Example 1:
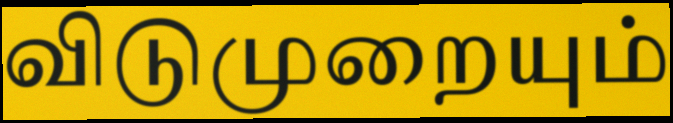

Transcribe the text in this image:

விடுமுறையும்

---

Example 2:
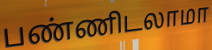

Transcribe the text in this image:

பண்ணிடலாமா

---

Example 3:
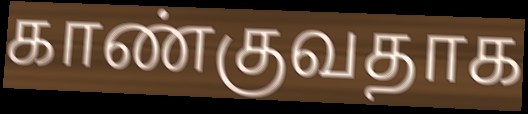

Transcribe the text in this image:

காண்குவதாக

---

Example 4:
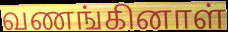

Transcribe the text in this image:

வணங்கினாள்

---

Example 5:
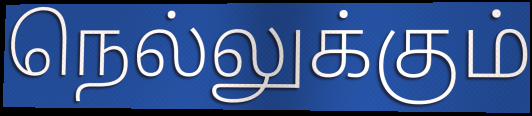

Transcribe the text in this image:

நெல்லுக்கும்